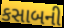
કસાબની